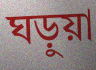
ঘড়ুয়া